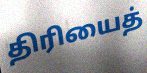
திரியைத்